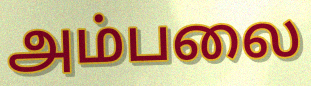
அம்பலை